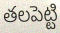
తలపెట్టి